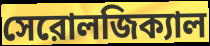
সেরোলজিক্যাল